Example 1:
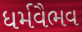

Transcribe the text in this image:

ધર્મવૈભવ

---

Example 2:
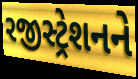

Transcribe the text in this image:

રજીસ્ટ્રેશનને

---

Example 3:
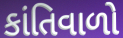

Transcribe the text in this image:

કાંતિવાળો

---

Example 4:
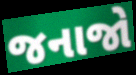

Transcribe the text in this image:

જનાજો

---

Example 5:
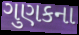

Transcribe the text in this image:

ગુણકના